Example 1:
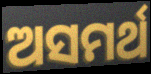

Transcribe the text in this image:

ଅସମର୍ଥ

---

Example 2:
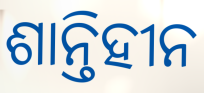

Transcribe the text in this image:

ଶାନ୍ତିହୀନ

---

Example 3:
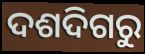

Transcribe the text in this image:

ଦଶଦିଗରୁ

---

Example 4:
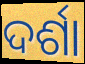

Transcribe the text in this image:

ଦର୍ଶା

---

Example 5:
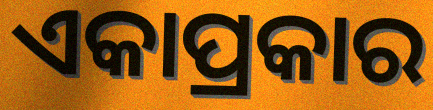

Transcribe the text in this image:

ଏକାପ୍ରକାର